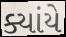
ક્યાંયે